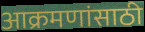
आक्रमणांसाठी